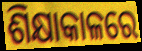
ଶିକ୍ଷାକାଳରେ